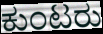
ಕುಂಟರು